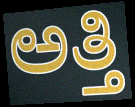
ಅತ್ತಿ